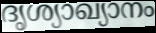
ദൃശ്യാഖ്യാനം